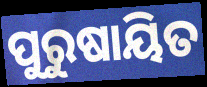
ପୁରୁଷାୟିତ